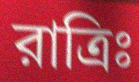
রাত্রিঃ